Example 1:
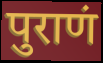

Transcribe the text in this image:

पुराणं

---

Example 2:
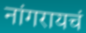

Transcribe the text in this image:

नांगरायचं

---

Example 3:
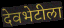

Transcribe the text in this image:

देवभेटीला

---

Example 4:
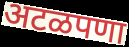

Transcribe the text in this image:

अटळपणा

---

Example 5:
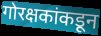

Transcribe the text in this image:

गोरक्षकांकडून